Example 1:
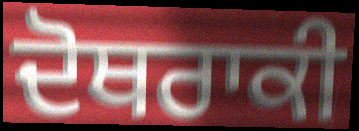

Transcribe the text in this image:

ਦੋਥਰਾਕੀ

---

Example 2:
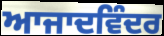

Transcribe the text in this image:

ਆਜਾਦਵਿੰਦਰ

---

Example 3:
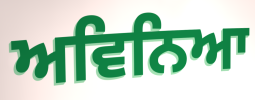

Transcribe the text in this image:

ਅਵਿਨਿਆ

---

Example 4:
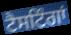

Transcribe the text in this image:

ਟੈਸਟਿੰਗਾਂ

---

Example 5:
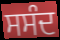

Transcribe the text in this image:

ਸਸੰਦ